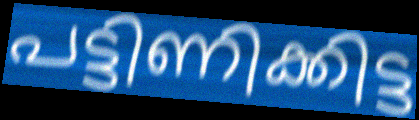
പട്ടിണിക്കിട്ട